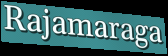
Rajamaraga